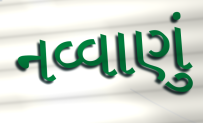
નવ્વાણું